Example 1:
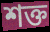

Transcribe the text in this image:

শক্ত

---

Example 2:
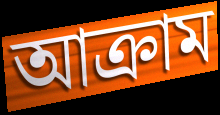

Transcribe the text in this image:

আক্ৰাম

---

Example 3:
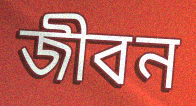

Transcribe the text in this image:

জীবন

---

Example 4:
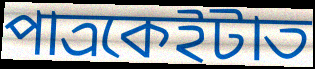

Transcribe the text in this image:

পাত্ৰকেইটাত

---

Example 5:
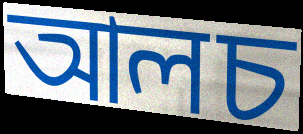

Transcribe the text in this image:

আলচ